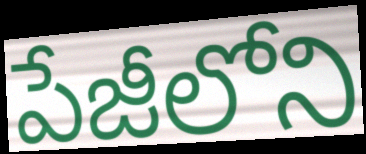
పేజీలోని